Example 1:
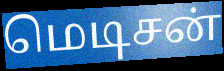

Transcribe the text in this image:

மெடிசன்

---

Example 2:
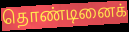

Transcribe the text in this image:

தொண்டினைக்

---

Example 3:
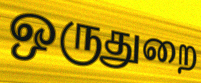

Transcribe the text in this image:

ஒருதுறை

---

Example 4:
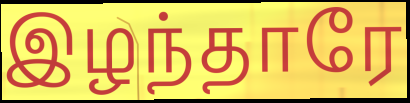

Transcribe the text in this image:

இழந்தாரே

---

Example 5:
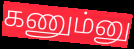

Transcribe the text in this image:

கணும்னு